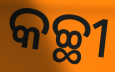
କଚ୍ଛୀ